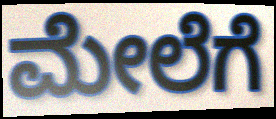
ಮೇಲೆಗೆ